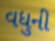
વધુની